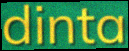
dinta